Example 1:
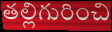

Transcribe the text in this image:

తల్లిగురించి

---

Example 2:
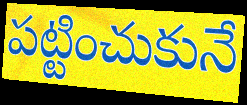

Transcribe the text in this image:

పట్టించుకునే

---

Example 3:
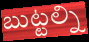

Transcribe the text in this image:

బుట్టల్ని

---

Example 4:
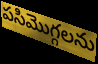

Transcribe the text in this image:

పసిమొగ్గలను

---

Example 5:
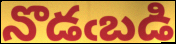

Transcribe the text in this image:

నొడఁబడి